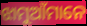
ଝାମୁଆଁମାନେ